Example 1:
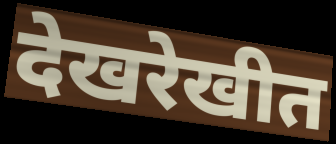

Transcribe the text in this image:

देखरेखीत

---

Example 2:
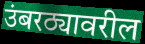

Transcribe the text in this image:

उंबरठ्यावरील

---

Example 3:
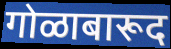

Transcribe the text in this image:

गोळाबारूद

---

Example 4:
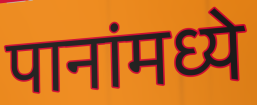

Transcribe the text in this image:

पानांमध्ये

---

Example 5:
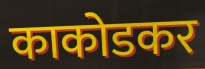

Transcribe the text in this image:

काकोडकर